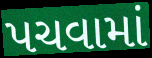
પચવામાં